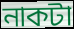
নাকটা